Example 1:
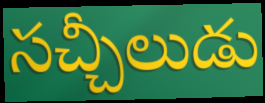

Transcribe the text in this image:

సచ్చీలుడు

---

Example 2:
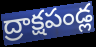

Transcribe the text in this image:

ద్రాక్షపండ్ల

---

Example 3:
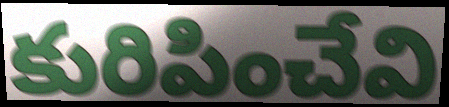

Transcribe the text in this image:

కురిపించేవి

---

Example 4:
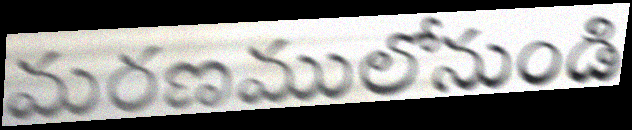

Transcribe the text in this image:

మరణములోనుండి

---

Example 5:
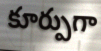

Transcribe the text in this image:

కూర్పుగా